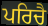
ਪਰਿਚੈ